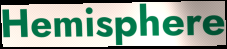
Hemisphere